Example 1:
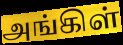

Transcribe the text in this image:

அங்கிள்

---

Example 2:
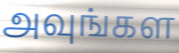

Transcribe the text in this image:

அவுங்கள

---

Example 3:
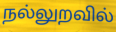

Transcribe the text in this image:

நல்லுறவில்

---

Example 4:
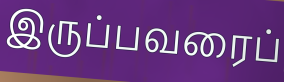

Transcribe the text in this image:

இருப்பவரைப்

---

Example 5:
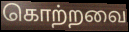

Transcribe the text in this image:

கொற்றவை